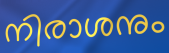
നിരാശനും